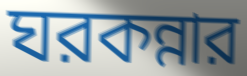
ঘরকন্নার